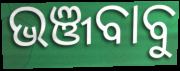
ଭଞ୍ଜବାବୁ